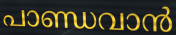
പാണ്ഡവാൻ